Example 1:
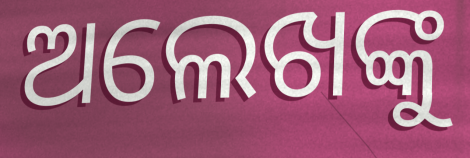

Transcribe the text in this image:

ଅଲେଖଙ୍କୁ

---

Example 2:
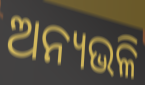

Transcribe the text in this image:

ଅନ୍ୟଭଳି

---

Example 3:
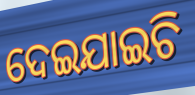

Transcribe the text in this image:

ଦେଇଯାଇଚି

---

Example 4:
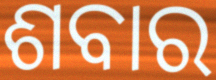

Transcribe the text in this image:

ଶବାର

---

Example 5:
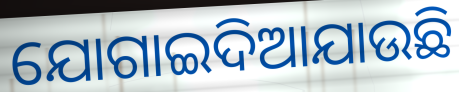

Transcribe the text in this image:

ଯୋଗାଇଦିଆଯାଉଛି